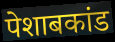
पेशाबकांड